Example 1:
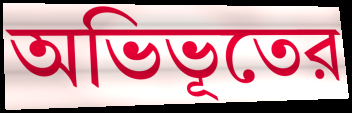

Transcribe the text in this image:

অভিভূতের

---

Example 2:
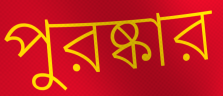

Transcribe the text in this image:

পুরষ্কার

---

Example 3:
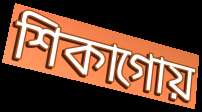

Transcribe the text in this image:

শিকাগোয়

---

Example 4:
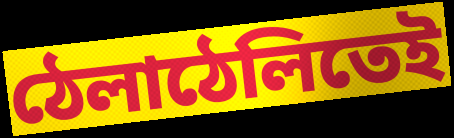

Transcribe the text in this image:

ঠেলাঠেলিতেই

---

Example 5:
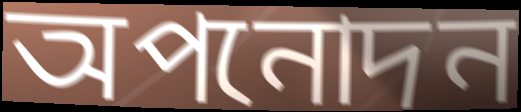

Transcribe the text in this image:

অপনোদন